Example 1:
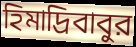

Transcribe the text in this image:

হিমাদ্রিবাবুর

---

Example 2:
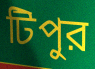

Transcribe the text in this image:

টিপুর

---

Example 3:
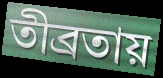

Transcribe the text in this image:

তীব্রতায়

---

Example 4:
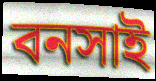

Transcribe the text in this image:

বনসাই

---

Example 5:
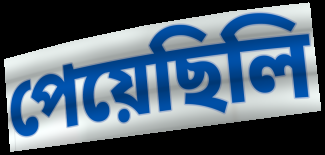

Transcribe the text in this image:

পেয়েছিলি